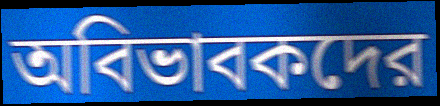
অবিভাবকদের